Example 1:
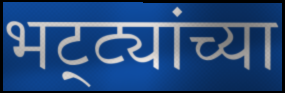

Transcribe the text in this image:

भट्ट्यांच्या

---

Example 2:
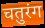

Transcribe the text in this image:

चतुरंग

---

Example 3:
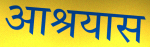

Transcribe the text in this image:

आश्रयास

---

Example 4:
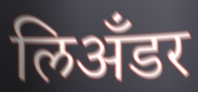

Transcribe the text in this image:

लिअँडर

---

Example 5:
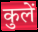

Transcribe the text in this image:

कुलें